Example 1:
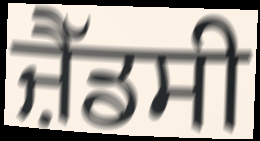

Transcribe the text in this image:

ਜ਼ੈੱਡਸੀ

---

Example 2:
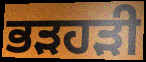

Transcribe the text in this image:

ਭੜਹੜੀ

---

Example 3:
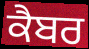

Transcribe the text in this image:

ਕੈਬਰ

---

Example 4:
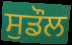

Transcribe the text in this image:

ਸੁਡੌਲ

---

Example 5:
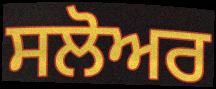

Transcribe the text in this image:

ਸਲੋਅਰ